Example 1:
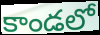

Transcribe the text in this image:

కాండలో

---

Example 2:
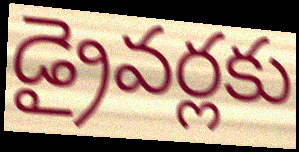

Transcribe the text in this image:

డ్రైవర్లకు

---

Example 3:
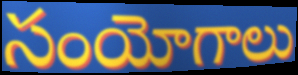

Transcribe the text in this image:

సంయోగాలు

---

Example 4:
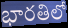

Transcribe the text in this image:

భారతిలో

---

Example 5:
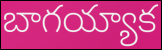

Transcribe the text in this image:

బాగయ్యాక